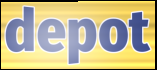
depot